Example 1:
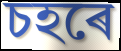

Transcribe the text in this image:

চহৰে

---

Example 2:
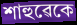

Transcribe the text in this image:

শাহুৱেকে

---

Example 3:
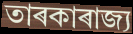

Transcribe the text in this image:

তাৰকাৰাজ্য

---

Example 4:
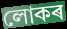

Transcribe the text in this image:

লোকৰ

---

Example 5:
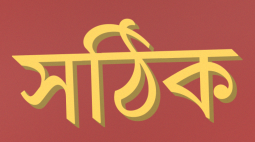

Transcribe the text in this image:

সঠিক